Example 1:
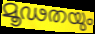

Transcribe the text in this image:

മൂഢതയും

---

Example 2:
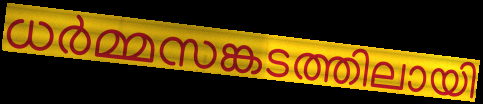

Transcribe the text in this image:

ധർമ്മസങ്കടത്തിലായി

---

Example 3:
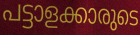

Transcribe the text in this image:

പട്ടാളക്കാരുടെ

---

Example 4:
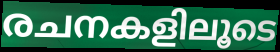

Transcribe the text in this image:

രചനകളിലൂടെ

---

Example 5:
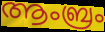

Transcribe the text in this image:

ആംബ്രം